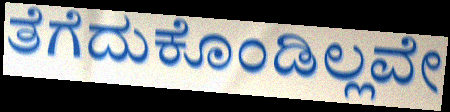
ತೆಗೆದುಕೊಂಡಿಲ್ಲವೇ